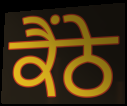
ਕੈਂਠੇ